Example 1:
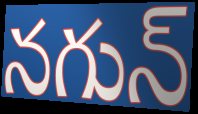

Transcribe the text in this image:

నగున్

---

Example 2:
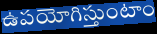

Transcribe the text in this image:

ఉపయోగిస్తుంటాం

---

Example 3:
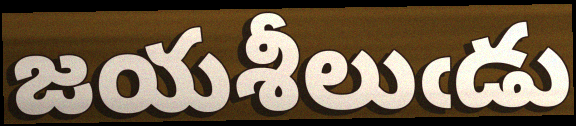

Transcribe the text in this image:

జయశీలుఁడు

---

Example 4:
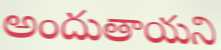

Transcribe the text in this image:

అందుతాయని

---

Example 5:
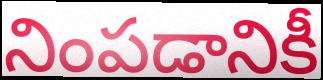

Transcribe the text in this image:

నింపడానికీ